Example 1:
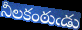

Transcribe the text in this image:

నీలకంఠుఁడు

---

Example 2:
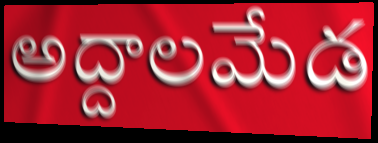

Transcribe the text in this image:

అద్దాలమేడ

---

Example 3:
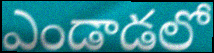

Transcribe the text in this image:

ఎండాడలో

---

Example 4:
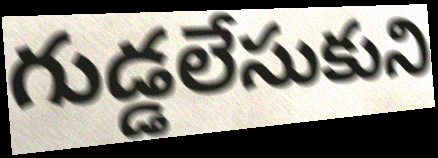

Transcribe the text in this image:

గుడ్డలేసుకుని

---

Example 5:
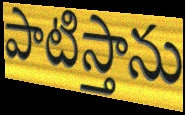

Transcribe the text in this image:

పాటిస్తాను